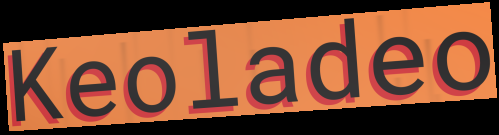
Keoladeo